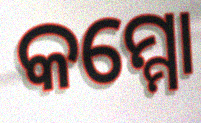
କମ୍ମୋ